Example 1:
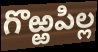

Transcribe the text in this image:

గొఱ్ఱపిల్ల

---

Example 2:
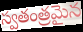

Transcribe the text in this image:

స్వతంత్రమైన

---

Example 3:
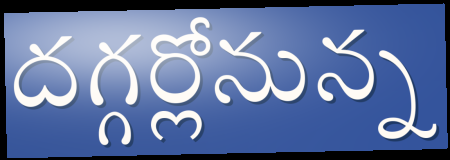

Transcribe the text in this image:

దగ్గర్లోనున్న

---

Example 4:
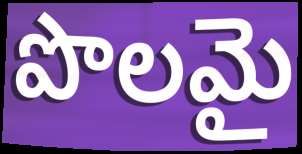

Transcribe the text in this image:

పొలమై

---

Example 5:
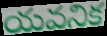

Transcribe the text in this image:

యవనిక